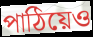
পাঠিয়েও